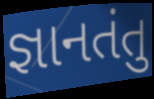
જ્ઞાનતંતુ